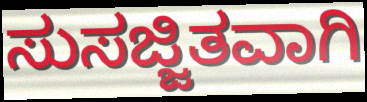
ಸುಸಜ್ಜಿತವಾಗಿ